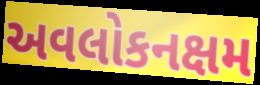
અવલોકનક્ષમ